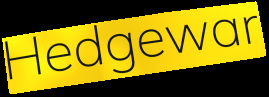
Hedgewar